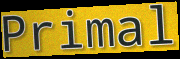
Primal